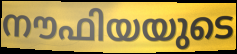
നൗഫിയയുടെ